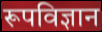
रूपविज्ञान